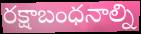
రక్షాబంధనాల్ని